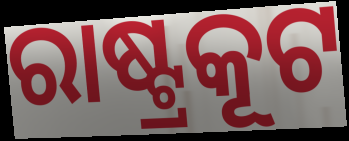
ରାଷ୍ଟ୍ରକୂଟ